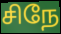
சிநே